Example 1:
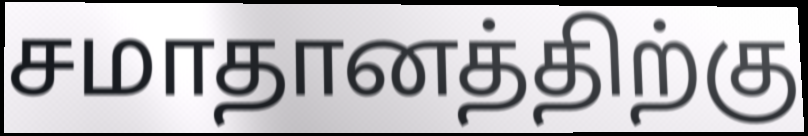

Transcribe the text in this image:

சமாதானத்திற்கு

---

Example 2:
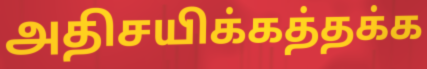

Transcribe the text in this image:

அதிசயிக்கத்தக்க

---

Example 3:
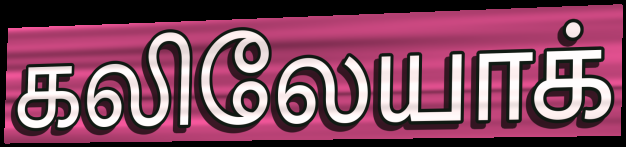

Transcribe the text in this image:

கலிலேயாக்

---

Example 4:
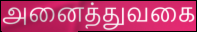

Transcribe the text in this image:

அனைத்துவகை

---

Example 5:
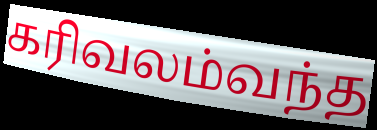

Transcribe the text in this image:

கரிவலம்வந்த